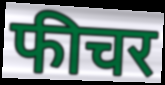
फीचर